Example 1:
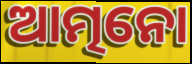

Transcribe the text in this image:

ଆତ୍ମନୋ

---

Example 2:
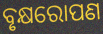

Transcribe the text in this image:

ବୃକ୍ଷରୋପଣ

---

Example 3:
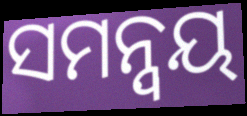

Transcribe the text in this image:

ସମନ୍ନ୍ୱୟ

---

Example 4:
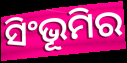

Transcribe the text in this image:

ସିଂଭୂମିର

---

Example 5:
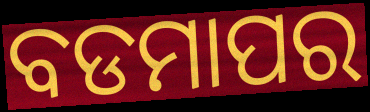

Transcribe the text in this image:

ବଡମାପର